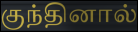
குந்தினால்